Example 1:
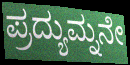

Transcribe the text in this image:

ಪ್ರದ್ಯುಮ್ನನೇ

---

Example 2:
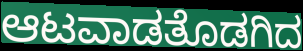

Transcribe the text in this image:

ಆಟವಾಡತೊಡಗಿದ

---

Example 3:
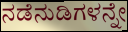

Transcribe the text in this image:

ನಡೆನುಡಿಗಳನ್ನೇ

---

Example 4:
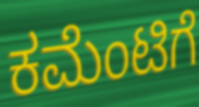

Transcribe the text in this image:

ಕಮೆಂಟಿಗೆ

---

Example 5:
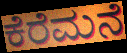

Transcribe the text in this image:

ಕೆರೆಮನೆ